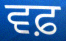
ਵਫ਼